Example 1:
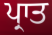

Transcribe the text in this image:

ਪ੍ਰਾਤ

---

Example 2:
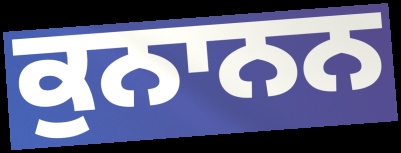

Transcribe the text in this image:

ਕੁਨਾਨਨ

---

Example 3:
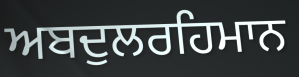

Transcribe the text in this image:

ਅਬਦੁਲਰਹਿਮਾਨ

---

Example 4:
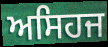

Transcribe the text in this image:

ਅਸਿਹਜ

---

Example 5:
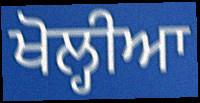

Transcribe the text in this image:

ਖੋਲ੍ਹੀਆ